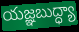
యజ్ఞబుద్ధ్యా